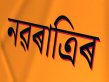
নৱৰাত্ৰিৰ